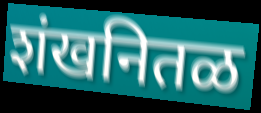
शंखनितळ